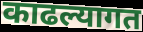
काढल्यागत